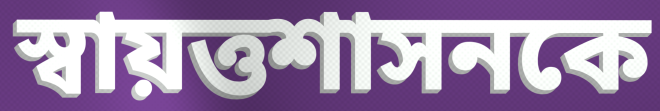
স্বায়ত্তশাসনকে